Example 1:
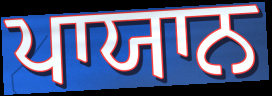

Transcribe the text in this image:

ਪਾਯਾਨ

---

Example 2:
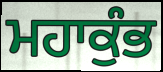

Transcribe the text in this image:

ਮਹਾਕੁੰਭ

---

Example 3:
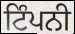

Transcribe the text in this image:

ਟਿੰਪਨੀ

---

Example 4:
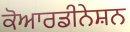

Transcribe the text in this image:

ਕੋਆਰਡੀਨੇਸ਼ਨ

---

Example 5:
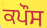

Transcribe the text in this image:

ਕਪੌਸ